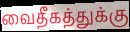
வைதீகத்துக்கு